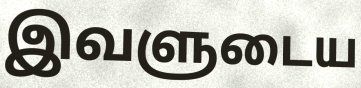
இவளுடைய